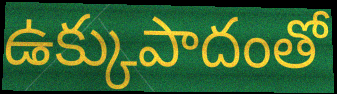
ఉక్కుపాదంతో